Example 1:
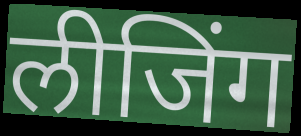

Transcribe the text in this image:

लीजिंग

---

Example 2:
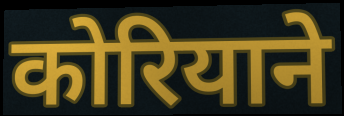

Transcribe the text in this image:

कोरियाने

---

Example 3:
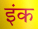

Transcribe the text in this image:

इंक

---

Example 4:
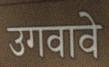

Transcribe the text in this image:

उगवावे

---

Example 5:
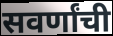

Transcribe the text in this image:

सवर्णांची